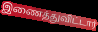
இணைத்துவிட்டார்